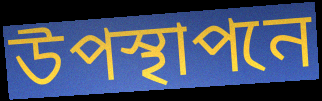
উপস্থাপনে